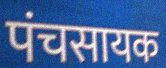
पंचसायक